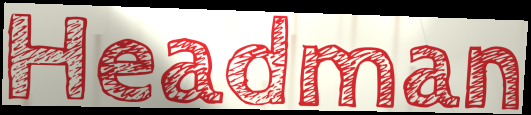
Headman